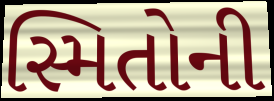
સ્મિતોની